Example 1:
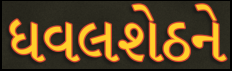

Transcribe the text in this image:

ધવલશેઠને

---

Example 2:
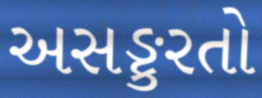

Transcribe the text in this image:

અસઙ્કરતો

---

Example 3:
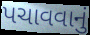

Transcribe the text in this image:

પચાવવાનું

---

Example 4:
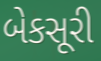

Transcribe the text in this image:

બેકસૂરી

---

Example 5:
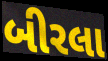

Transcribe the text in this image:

બીરલા